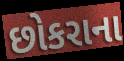
છોકરાના